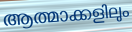
ആത്മാക്കളിലും